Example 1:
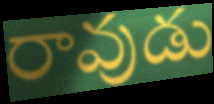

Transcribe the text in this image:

రావుడు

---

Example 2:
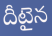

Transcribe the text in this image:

దీటైన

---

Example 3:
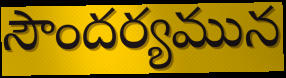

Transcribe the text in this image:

సౌందర్యమున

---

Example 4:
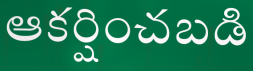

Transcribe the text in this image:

ఆకర్షించబడి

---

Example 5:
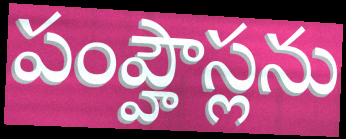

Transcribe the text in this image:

పంప్హౌస్లను